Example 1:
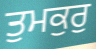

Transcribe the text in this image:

ਤੁਮਕੁਰੁ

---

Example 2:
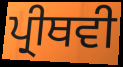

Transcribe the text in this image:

ਪ੍ਰੀਥਵੀ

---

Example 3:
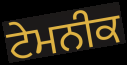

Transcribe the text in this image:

ਟੇਮਨੀਕ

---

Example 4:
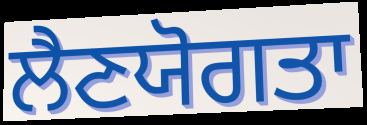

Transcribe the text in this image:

ਲੈਣਯੋਗਤਾ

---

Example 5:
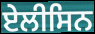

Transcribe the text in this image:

ਏਲੀਸਿਨ